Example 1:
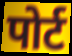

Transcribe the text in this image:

पोर्ट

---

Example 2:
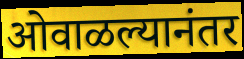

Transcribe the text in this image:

ओवाळल्यानंतर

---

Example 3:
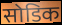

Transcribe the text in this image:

सोडिक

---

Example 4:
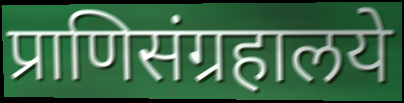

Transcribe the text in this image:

प्राणिसंग्रहालये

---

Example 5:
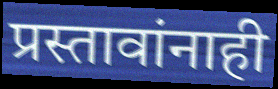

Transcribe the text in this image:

प्रस्तावांनाही